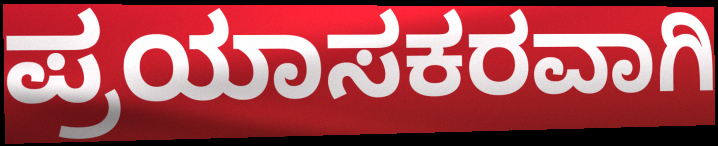
ಪ್ರಯಾಸಕರವಾಗಿ